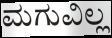
ಮಗುವಿಲ್ಲ